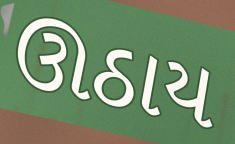
ઊઠાય